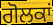
ਗੋਲਕਾਂ